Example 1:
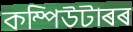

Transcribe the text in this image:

কম্পিউটাৰৰ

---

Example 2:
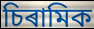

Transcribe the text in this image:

চিৰামিক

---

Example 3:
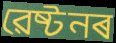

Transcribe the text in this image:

ৱেষ্টনৰ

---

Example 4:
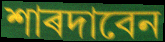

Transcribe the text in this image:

শাৰদাবেন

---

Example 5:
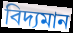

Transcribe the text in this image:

বিদ্যমান